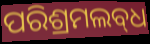
ପରିଶ୍ରମଲବ୍‍ଧ